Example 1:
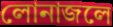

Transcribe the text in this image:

লোনাজলে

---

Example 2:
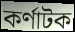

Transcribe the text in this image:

কর্ণাটক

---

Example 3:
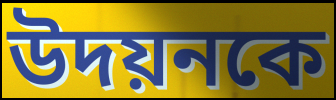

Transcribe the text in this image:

উদয়নকে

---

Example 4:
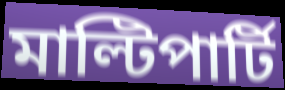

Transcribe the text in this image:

মাল্টিপার্টি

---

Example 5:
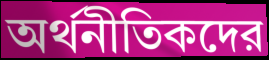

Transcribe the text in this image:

অর্থনীতিকদের